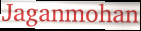
Jaganmohan